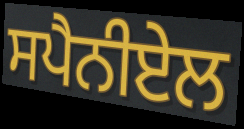
ਸਪੈਨੀਏਲ